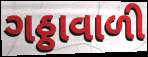
ગઠ્ઠાવાળી